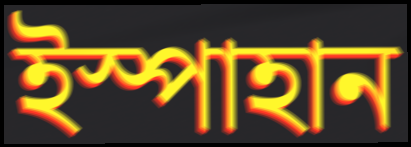
ইস্পাহান